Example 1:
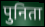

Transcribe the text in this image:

पुनिता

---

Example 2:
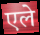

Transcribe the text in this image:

एले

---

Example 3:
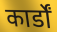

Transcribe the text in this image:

कार्डों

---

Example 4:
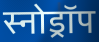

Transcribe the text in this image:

स्नोड्रॉप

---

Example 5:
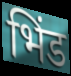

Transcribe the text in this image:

भिंड